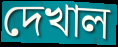
দেখাল